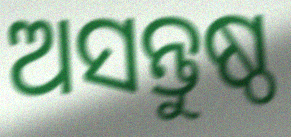
ଅସନ୍ତୁଷ୍ଠ